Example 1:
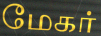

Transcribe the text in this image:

மேகர்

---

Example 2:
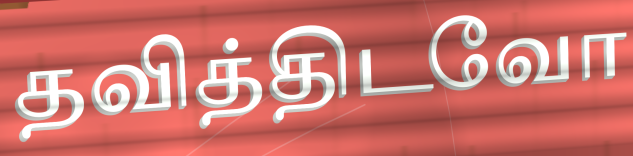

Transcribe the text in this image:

தவித்திடவோ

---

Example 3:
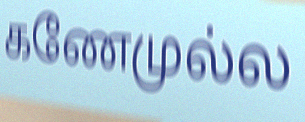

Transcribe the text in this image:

கணேமுல்ல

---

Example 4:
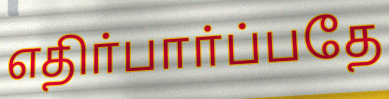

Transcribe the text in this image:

எதிர்பார்ப்பதே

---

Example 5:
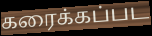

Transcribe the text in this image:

கரைக்கப்பட